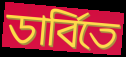
ডার্বিতে